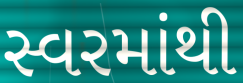
સ્વરમાંથી